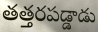
తత్తరపడ్డాడు